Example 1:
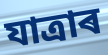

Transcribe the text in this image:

যাত্ৰাৰ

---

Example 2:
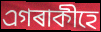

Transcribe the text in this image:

এগৰাকীহে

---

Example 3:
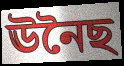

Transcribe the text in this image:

ঊনৈছ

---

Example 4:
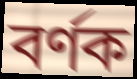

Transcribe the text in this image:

বৰ্ণক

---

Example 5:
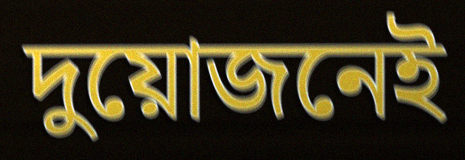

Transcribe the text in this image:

দুয়োজনেই